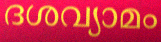
ദശവ്യാമം